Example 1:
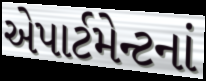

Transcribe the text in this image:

એપાર્ટમેન્ટનાં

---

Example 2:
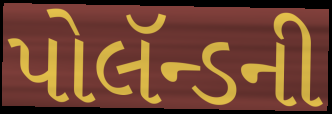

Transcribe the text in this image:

પોલૅન્ડની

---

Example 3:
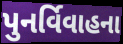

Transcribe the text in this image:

પુનર્વિવાહના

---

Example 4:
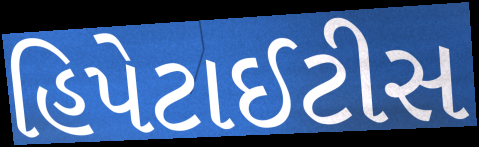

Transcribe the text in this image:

હિપેટાઈટીસ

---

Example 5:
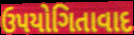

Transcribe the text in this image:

ઉપયોગિતાવાદ